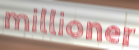
millioner